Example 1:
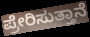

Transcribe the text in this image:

ಪ್ರೇರಿಸುತ್ತಾನೆ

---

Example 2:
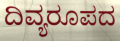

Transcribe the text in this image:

ದಿವ್ಯರೂಪದ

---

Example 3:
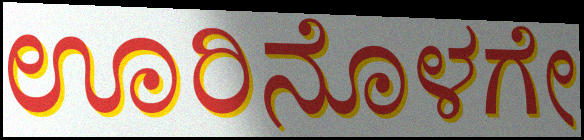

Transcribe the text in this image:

ಊರಿನೊಳಗೇ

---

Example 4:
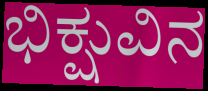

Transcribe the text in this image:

ಭಿಕ್ಷುವಿನ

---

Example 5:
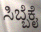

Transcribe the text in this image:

ಸಿಬ್ಬೆಕೈ